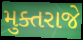
મુક્તરાજે